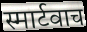
स्मार्टवाच